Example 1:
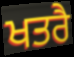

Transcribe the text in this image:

ਖਤਰੈ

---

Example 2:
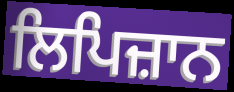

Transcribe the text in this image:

ਲਿਪਿਜ਼ਾਨ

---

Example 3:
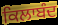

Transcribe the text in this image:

ਕਿਲਾਬੰਦ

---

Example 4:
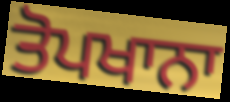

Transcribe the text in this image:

ਤੋਪਖਾਨਾ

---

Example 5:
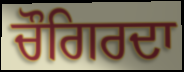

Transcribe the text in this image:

ਚੌਗਿਰਦਾ